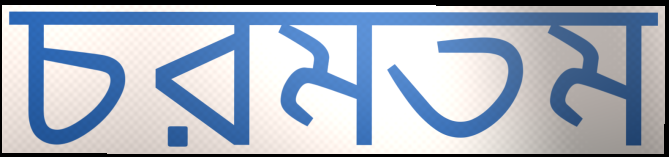
চরমতম